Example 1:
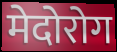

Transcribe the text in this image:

मेदोरोग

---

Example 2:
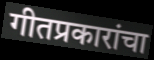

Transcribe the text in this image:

गीतप्रकारांचा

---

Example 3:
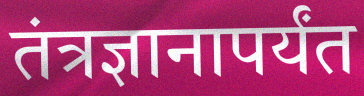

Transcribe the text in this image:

तंत्रज्ञानापर्यंत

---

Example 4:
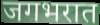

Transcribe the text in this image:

जगभरात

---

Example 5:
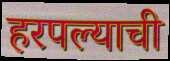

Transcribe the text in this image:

हरपल्याची